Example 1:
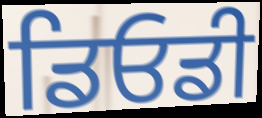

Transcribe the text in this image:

ਡਿਓਡੀ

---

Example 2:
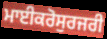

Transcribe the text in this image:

ਮਾਈਕਰੋਸੁਰਜਰੀ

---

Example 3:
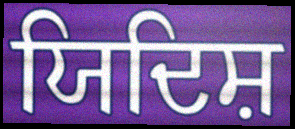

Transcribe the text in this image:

ਯਿਦਿਸ਼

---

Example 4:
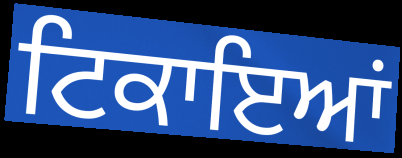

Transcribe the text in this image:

ਟਿਕਾਇਆਂ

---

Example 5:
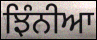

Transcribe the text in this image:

ਝਿੰਨੀਆ